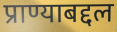
प्राण्याबद्दल